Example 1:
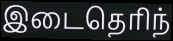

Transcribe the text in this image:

இடைதெரிந்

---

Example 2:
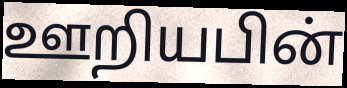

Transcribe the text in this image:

ஊறியபின்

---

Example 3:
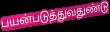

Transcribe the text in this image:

பயன்படுத்துவதுண்டு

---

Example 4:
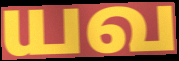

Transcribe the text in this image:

யவ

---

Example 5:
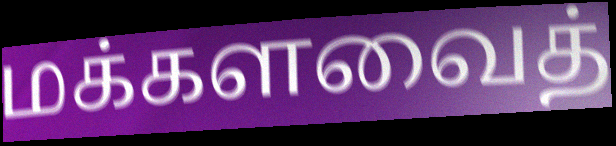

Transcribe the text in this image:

மக்களவைத்